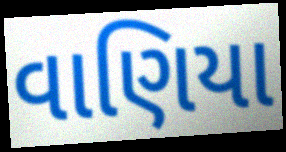
વાણિયા